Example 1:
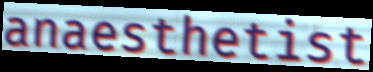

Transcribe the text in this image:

anaesthetist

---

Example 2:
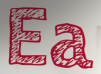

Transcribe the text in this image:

Ea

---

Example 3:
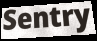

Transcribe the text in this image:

Sentry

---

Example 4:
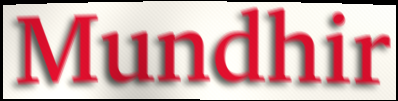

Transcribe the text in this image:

Mundhir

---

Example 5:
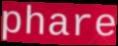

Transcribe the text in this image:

phare